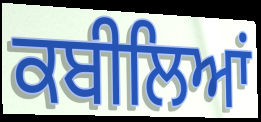
ਕਬੀਲਿਆਂ